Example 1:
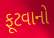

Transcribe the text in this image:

ફૂટવાનો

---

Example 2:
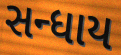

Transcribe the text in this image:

સન્ધાય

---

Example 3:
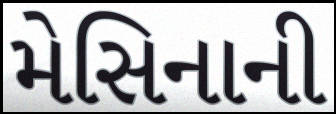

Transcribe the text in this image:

મેસિનાની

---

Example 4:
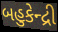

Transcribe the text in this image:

બહુકેન્દ્રી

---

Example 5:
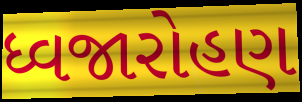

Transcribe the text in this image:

ધ્વજારોહણ